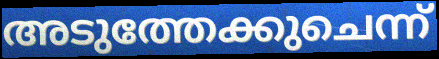
അടുത്തേക്കുചെന്ന്